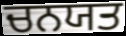
ਚਨਯਤ